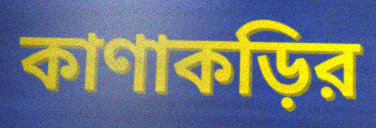
কাণাকড়ির